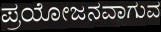
ಪ್ರಯೋಜನವಾಗುವ